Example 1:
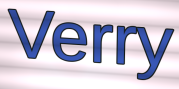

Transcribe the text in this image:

Verry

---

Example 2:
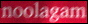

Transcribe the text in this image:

noolagam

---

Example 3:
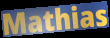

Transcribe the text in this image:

Mathias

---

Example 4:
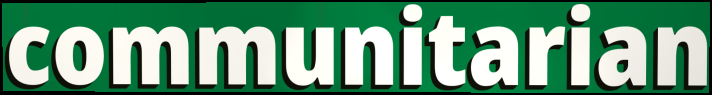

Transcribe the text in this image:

communitarian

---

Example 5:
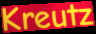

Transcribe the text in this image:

Kreutz